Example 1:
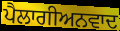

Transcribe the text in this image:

ਪੈਲਾਗੀਅਨਵਾਦ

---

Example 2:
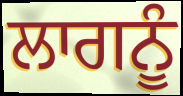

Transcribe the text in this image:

ਲਾਗਨੂੰ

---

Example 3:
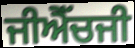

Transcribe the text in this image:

ਜੀਐੱਚਜੀ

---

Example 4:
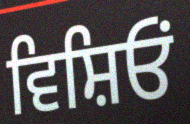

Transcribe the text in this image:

ਵਿਸ਼ਿਓਂ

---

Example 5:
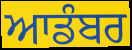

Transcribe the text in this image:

ਆਡੰਬਰ